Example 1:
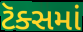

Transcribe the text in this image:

ટૅક્સમાં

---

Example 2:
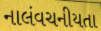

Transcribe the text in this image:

નાલંવચનીયતા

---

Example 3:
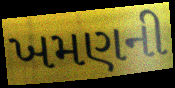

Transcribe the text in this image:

ખમણની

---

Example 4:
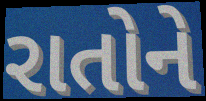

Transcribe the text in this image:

રાતોને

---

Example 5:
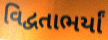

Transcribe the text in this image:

વિદ્વતાભર્યાં